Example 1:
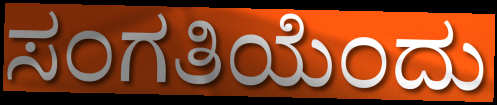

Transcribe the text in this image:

ಸಂಗತಿಯೆಂದು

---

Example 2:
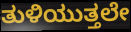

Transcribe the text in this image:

ತುಳಿಯುತ್ತಲೇ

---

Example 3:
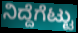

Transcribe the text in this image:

ನಿದ್ದೆಗೆಟ್ಟು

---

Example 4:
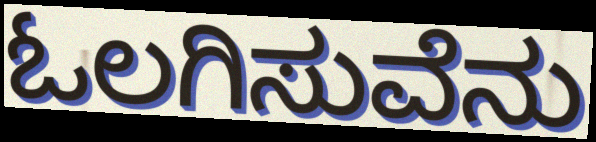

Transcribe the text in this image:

ಓಲಗಿಸುವೆನು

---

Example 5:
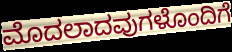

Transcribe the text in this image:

ಮೊದಲಾದವುಗಳೊಂದಿಗೆ